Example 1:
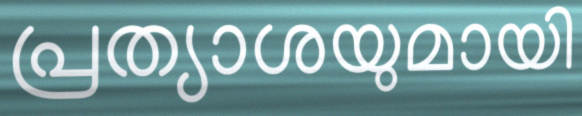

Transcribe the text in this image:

പ്രത്യാശയുമായി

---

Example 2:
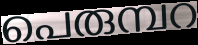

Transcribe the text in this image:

പെരുമ്പറ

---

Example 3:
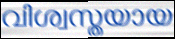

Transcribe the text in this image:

വിശ്വസ്തയായ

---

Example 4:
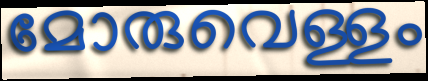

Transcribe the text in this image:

മോരുവെള്ളം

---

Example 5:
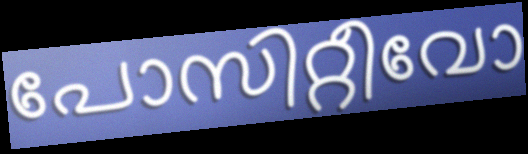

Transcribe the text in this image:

പോസിറ്റീവോ